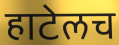
हाटेलच